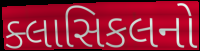
ક્લાસિકલનો